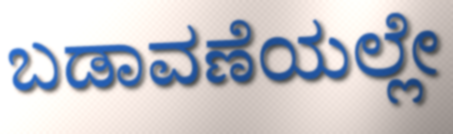
ಬಡಾವಣೆಯಲ್ಲೇ